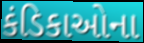
કંડિકાઓના